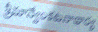
శ్రీమాన్వేంకటనాథార్య